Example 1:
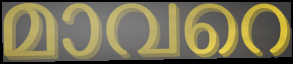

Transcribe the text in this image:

മാവറെ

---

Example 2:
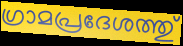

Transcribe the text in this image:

ഗ്രാമപ്രദേശത്തു്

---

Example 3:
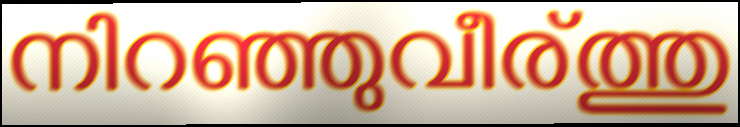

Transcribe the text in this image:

നിറഞ്ഞുവീര്ത്തു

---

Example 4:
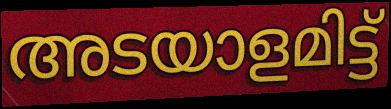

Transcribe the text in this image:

അടയാളമിട്ട്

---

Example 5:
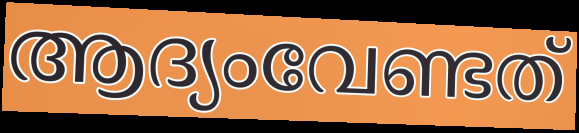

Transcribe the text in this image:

ആദ്യംവേണ്ടത്